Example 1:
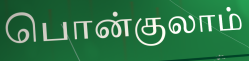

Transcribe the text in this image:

பொன்குலாம்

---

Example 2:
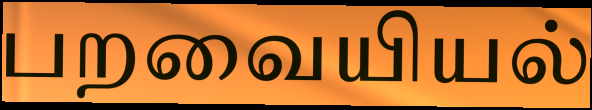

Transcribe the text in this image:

பறவையியல்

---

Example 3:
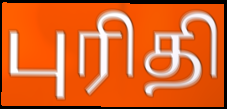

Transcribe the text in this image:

புரிதி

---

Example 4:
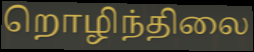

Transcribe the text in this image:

றொழிந்திலை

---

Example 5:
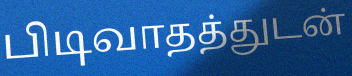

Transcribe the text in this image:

பிடிவாதத்துடன்